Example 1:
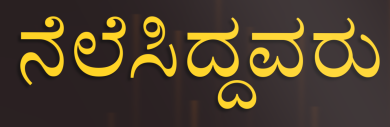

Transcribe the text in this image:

ನೆಲೆಸಿದ್ದವರು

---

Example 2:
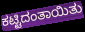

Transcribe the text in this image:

ಕಟ್ಟಿದಂತಾಯಿತು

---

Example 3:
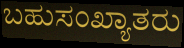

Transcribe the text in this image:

ಬಹುಸಂಖ್ಯಾತರು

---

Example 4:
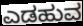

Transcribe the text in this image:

ಎಡಹುವ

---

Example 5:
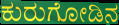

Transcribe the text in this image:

ಕುರುಗೋಡಿನ